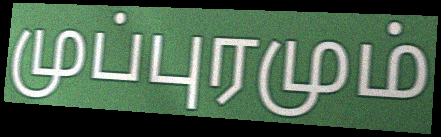
முப்புரமும்